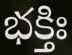
భక్తిః